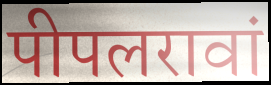
पीपलरावां